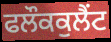
ਫਲੌਕਕੁਲੈਂਟ